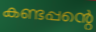
കണ്ടപ്പന്റെ